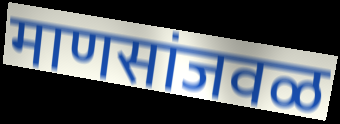
माणसांजवळ